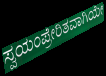
ಸ್ವಯಂಪ್ರೇರಿತವಾಗಿಯೇ